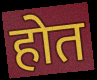
होत